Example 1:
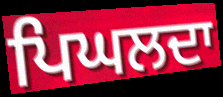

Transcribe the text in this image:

ਪਿਘਲਦਾ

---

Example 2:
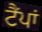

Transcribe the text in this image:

ਟੈਂਪਾਂ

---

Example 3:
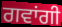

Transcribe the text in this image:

ਗਵਾਂਗੀ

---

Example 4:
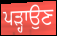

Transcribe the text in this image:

ਪੜ੍ਹਾਉਣ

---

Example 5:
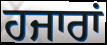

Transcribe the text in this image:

ਹਜਾਰਾਂ